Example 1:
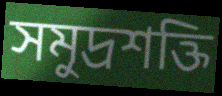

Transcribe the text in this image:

সমুদ্রশক্তি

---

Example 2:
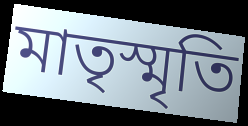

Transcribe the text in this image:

মাতৃস্মৃতি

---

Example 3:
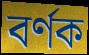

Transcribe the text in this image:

বর্ণক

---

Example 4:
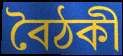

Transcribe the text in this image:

বৈঠকী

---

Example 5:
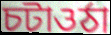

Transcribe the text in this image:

চটাওঠা